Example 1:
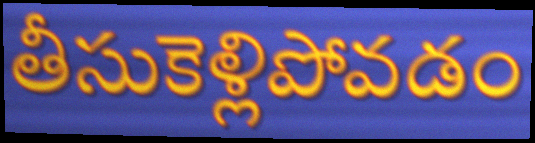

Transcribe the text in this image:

తీసుకెళ్లిపోవడం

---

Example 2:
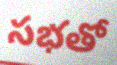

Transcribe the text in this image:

సభతో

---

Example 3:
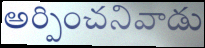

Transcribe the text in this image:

అర్పించనివాడు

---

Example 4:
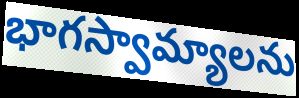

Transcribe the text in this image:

భాగస్వామ్యాలను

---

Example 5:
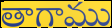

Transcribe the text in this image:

తాగాము